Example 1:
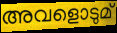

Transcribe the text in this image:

അവളൊടുമ്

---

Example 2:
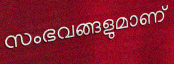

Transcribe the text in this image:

സംഭവങ്ങളുമാണ്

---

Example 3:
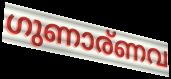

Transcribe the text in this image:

ഗുണാര്ണവ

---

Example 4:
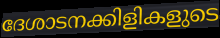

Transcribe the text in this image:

ദേശാടനക്കിളികളുടെ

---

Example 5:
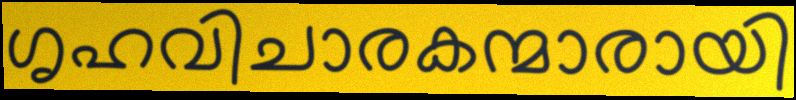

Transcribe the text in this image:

ഗൃഹവിചാരകന്മാരായി